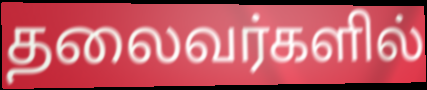
தலைவர்களில்